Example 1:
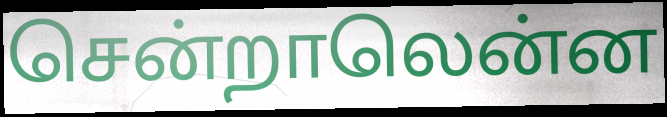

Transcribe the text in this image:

சென்றாலென்ன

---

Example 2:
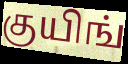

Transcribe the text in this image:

குயிங்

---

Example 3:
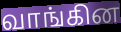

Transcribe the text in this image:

வாங்கின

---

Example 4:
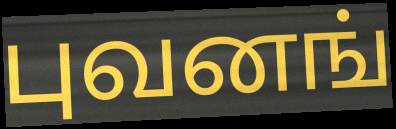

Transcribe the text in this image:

புவனங்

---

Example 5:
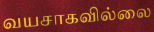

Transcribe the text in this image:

வயசாகவில்லை